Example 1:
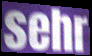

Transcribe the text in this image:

sehr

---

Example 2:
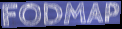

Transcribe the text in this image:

FODMAP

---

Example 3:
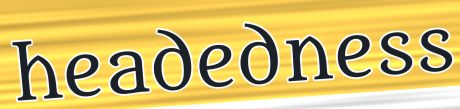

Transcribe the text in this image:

headedness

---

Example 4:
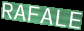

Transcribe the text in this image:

RAFALE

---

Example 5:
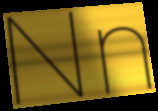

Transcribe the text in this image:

Nn